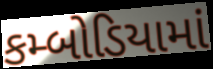
કમ્બોડિયામાં